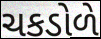
ચકડોળે